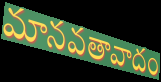
మానవతావాదం